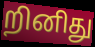
றினிது